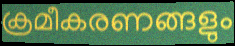
ക്രമീകരണങ്ങളും